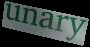
unary